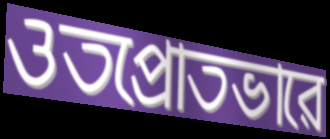
ওতপ্ৰোতভাৱে